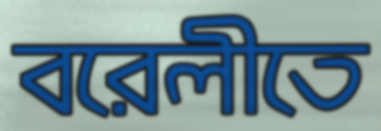
বরেলীতে